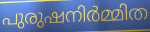
പുരുഷനിർമ്മിത